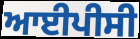
ਆਈਪੀਸੀ